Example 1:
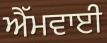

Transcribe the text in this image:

ਐੱਮਵਾਈ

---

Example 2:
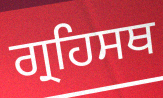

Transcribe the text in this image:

ਗ੍ਰਹਿਸਥ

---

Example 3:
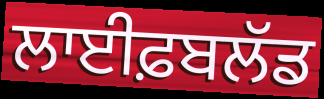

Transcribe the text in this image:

ਲਾਈਫ਼ਬਲੱਡ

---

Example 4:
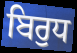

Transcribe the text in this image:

ਬਿਰੁਧ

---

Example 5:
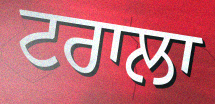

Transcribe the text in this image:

ਟਰਾਲਾ